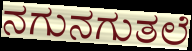
ನಗುನಗುತಲೆ